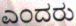
ಎಂದರು